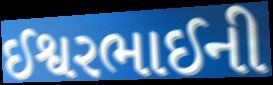
ઈશ્વરભાઈની